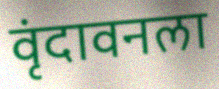
वृंदावनला